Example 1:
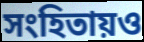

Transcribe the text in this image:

সংহিতায়ও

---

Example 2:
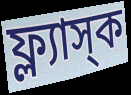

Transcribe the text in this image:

ফ্ল্যাস্‌ক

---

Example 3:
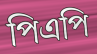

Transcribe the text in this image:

পিএপি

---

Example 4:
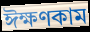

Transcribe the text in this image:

ঈক্ষণকাম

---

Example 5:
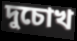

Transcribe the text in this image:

দুচোখ